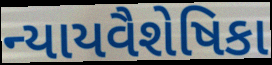
ન્યાયવૈશેષિકા